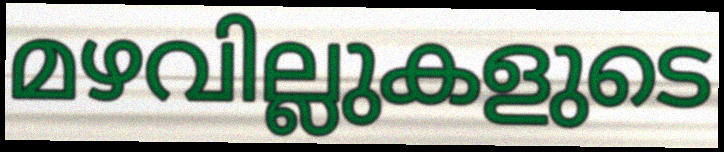
മഴവില്ലുകളുടെ